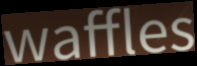
waffles